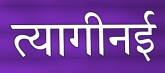
त्यागीनई